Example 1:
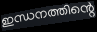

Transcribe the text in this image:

ഇന്ധനത്തിന്റെ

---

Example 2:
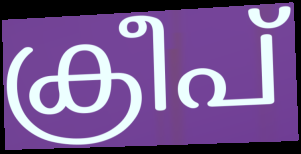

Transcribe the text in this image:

ക്രീപ്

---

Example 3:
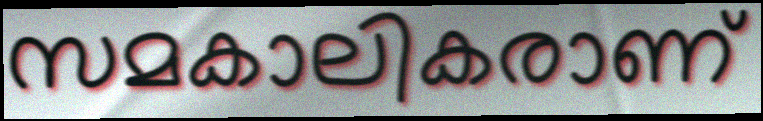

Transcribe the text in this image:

സമകാലികരാണ്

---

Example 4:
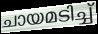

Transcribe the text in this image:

ചായമടിച്ച്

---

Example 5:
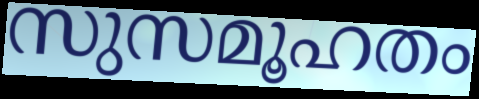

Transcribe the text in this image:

സുസമൂഹതം